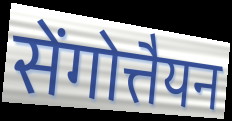
सेंगोत्तैयन